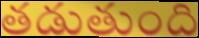
తడుతుంది